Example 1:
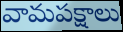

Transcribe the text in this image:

వామపక్షాలు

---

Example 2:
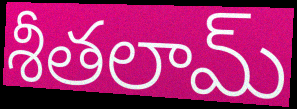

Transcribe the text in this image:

శీతలామ్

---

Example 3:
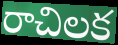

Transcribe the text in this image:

రాచిలక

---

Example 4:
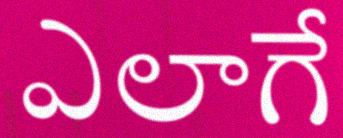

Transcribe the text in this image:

ఎలాగే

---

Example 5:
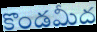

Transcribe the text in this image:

కొండమీద